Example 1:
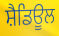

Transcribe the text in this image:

ਸ਼ੈਡਿਊਲ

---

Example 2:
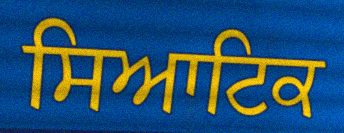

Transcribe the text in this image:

ਸਿਆਟਿਕ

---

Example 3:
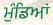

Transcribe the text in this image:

ਮੁੰਡਿਆਂ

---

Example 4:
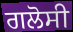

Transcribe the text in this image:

ਗਲੋਸੀ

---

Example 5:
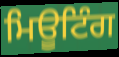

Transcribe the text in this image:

ਮਿਊਟਿੰਗ